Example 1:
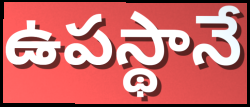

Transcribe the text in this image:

ఉపస్థానే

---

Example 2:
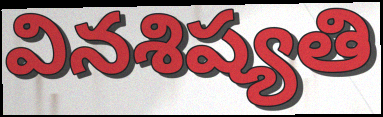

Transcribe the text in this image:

వినశిష్యతి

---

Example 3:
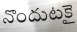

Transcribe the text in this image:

నొందుటకై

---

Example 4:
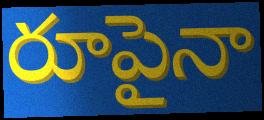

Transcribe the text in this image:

రూపైనా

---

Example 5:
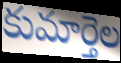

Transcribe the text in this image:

కుమార్తెల